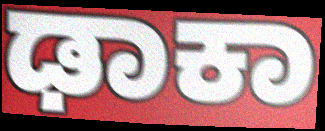
ಢಾಕಾ